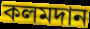
কলমদান